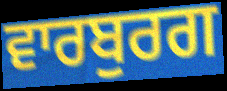
ਵਾਰਬੁਰਗ